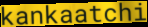
kankaatchi